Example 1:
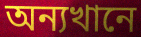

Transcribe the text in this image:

অন্যখানে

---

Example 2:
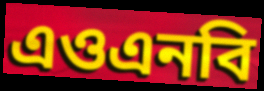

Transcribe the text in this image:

এওএনবি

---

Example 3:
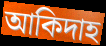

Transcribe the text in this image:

আকিদাহ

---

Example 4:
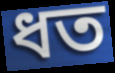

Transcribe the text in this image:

ধত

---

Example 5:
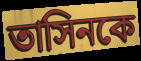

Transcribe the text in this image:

তাসিনকে